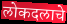
लोकदलाचे